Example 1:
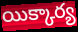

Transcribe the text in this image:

యిక్కార్య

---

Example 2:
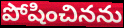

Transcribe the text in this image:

పోషించినను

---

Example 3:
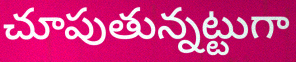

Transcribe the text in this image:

చూపుతున్నట్టుగా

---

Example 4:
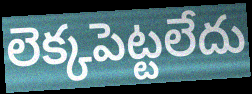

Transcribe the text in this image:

లెక్కపెట్టలేదు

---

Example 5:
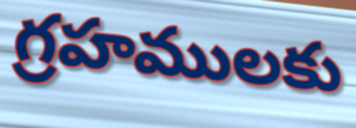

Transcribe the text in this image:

గ్రహములకు